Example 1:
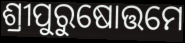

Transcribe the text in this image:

ଶ୍ରୀପୁରୁଷୋତ୍ତମେ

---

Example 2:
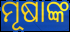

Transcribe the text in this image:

ମୂଷାଙ୍କ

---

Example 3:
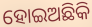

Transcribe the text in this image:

ହୋଇଅଛିକି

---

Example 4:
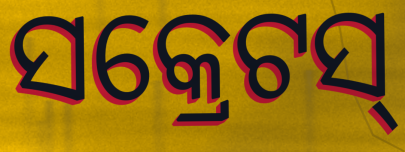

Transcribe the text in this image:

ସକ୍ରେଟସ୍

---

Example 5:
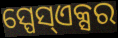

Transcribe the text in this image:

ସ୍ପେସ୍ଏକ୍ସର